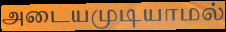
அடையமுடியாமல்